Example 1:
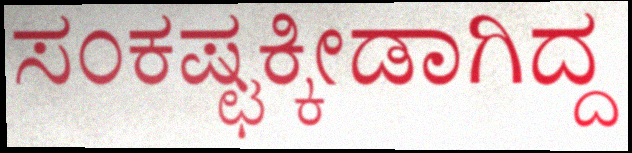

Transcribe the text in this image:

ಸಂಕಷ್ಟಕ್ಕೀಡಾಗಿದ್ದ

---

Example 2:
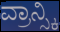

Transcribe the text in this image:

ವ್ರಾನ್ಸ್ಕಿ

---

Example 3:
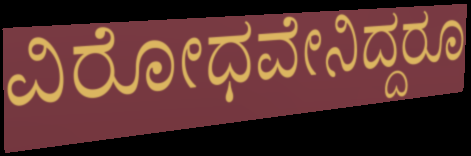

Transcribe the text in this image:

ವಿರೋಧವೇನಿದ್ದರೂ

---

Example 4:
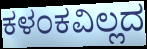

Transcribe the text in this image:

ಕಳಂಕವಿಲ್ಲದ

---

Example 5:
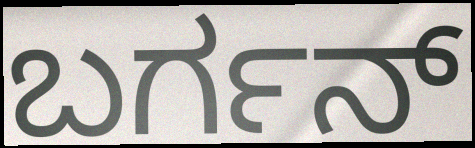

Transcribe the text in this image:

ಬರ್ಗನ್